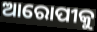
ଆରୋପୀକୁ